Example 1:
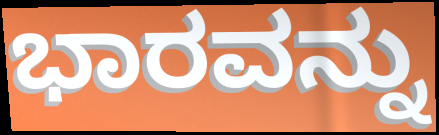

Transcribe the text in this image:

ಭಾರವನ್ನು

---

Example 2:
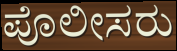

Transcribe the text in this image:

ಪೊಲೀಸರು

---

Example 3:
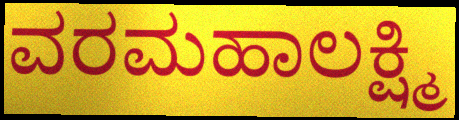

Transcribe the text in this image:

ವರಮಹಾಲಕ್ಷ್ಮಿ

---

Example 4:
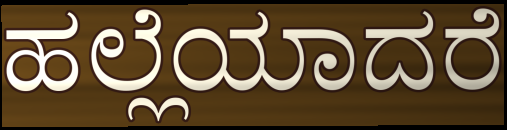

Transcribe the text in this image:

ಹಲ್ಲೆಯಾದರೆ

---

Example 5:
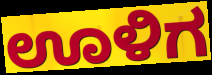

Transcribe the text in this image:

ಊಳಿಗ